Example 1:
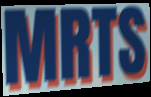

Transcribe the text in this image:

MRTS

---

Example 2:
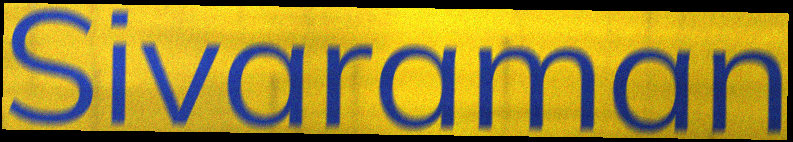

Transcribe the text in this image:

Sivaraman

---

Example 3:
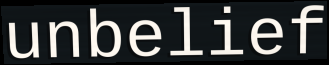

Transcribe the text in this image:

unbelief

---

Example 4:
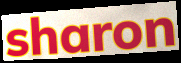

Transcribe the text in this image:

sharon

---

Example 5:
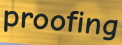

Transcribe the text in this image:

proofing